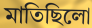
মাতিছিলো